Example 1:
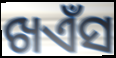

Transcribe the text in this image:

ଖଏଁସ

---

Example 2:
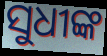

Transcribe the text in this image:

ସୁଧୀଙ୍କ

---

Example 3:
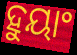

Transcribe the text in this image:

ହୁୟାଂ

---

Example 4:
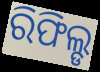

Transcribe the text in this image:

ରିଫିଲ୍ଡ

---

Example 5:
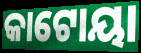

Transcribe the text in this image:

କାଟୋୟା